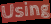
Using